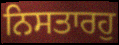
ਨਿਸਤਾਰਹੁ